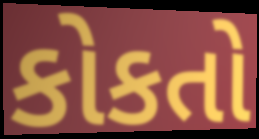
કોકતો